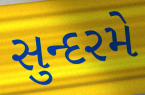
સુન્દરમે